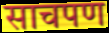
साचपण